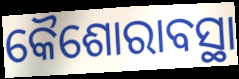
କୈଶୋରାବସ୍ଥା